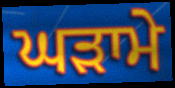
ਘੜਾਮੇ